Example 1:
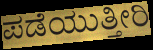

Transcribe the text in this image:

ಪಡೆಯುತ್ತೀರಿ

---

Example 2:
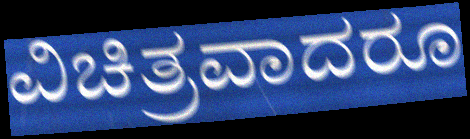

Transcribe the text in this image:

ವಿಚಿತ್ರವಾದರೂ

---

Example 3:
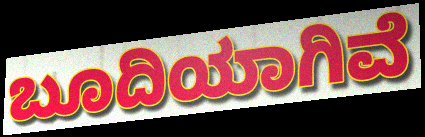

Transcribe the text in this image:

ಬೂದಿಯಾಗಿವೆ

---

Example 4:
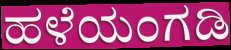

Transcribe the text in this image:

ಹಳೆಯಂಗಡಿ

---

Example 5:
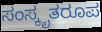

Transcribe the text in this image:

ಸಂಸ್ಕೃತರೂಪ